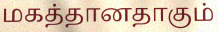
மகத்தானதாகும்